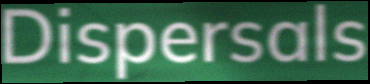
Dispersals